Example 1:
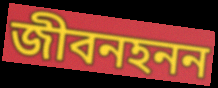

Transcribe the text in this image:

জীবনহনন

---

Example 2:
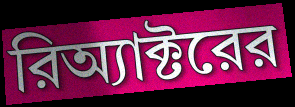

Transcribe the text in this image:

রিঅ্যাক্টরের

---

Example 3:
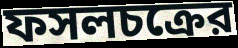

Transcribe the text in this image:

ফসলচক্রের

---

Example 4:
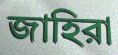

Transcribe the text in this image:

জাহিরা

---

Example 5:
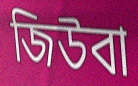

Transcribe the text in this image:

জিউবা